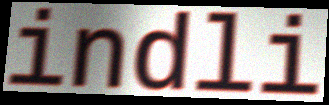
indli